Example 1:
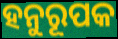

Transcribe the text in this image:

ହନୁରୂପକ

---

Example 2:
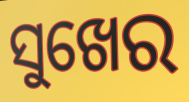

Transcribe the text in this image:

ସୁଖେର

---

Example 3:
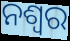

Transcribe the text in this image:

ନଶ୍ଵର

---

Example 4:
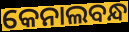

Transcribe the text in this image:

କେନାଲବନ୍ଧ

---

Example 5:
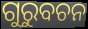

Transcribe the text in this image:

ଗୁରୁବଚନ